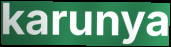
karunya